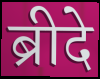
ब्रीदे